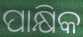
ପାକ୍ଷିକ